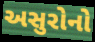
અસુરોનો